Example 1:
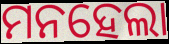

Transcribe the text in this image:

ମନହେଲା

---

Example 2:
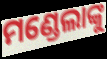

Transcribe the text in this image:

ମଣ୍ଡେଲାଙ୍କୁ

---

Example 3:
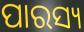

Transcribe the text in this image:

ପାରସ୍ୟ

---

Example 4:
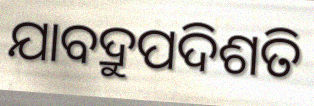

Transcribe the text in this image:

ଯାବଦ୍ରୁପଦିଶତି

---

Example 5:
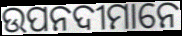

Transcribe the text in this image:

ଉପନଦୀମାନେ